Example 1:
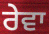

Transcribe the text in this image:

ਰੇਵਾ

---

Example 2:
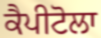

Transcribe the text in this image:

ਕੈਪੀਟੋਲਾ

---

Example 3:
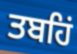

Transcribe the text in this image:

ਤਬਹਿਂ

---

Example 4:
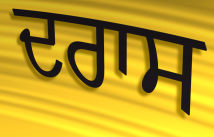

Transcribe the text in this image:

ਦਰਾਸ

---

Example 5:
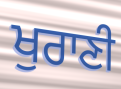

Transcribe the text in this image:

ਖੁਰਾਣੀ